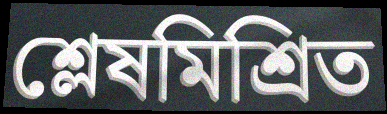
শ্লেষমিশ্রিত